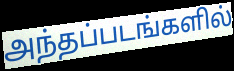
அந்தப்படங்களில்